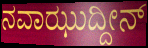
ನವಾಝುದ್ದೀನ್